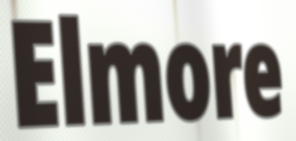
Elmore